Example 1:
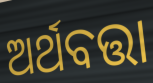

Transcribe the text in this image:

ଅର୍ଥବତ୍ତା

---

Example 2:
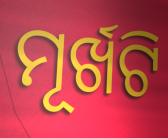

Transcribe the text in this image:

ମୂର୍ଖଟି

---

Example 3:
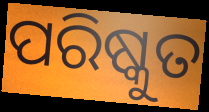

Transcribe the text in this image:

ପରିଷ୍କୁତ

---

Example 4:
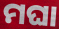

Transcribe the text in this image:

ମଘା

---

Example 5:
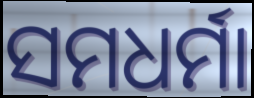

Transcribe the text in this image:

ସମଧର୍ମା